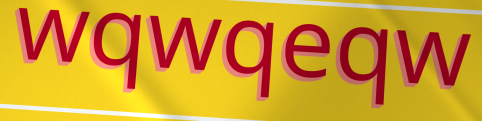
wqwqeqw